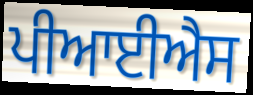
ਪੀਆਈਐਸ